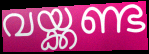
വയ്ക്കണ്ട